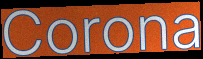
Corona